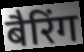
बैरिंग